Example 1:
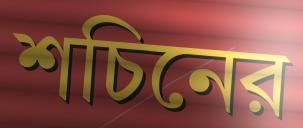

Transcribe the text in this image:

শচিনের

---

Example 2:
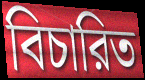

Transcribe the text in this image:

বিচারিত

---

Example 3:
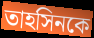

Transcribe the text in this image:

তাহসিনকে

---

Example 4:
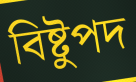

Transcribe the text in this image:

বিষ্টুপদ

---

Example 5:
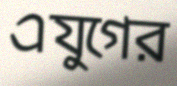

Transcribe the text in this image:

এযুগের